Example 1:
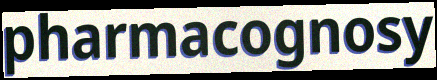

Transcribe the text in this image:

pharmacognosy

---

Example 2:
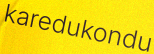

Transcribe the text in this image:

karedukondu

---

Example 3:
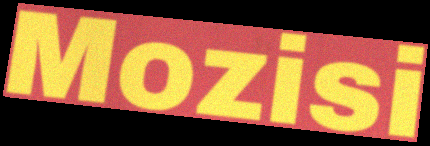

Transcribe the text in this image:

Mozisi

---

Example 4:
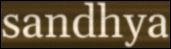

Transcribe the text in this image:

sandhya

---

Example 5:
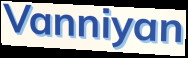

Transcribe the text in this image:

Vanniyan